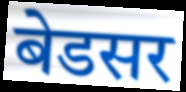
बेडसर